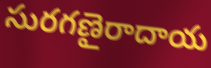
సురగణైరాదాయ